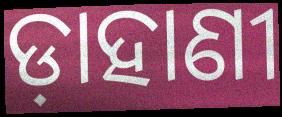
ଡ଼ାହାଣୀ